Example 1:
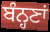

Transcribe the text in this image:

ਬੰਨ੍ਹਣਾਂ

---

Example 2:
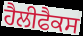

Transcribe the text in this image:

ਹੈਲੀਫੈਕਸ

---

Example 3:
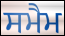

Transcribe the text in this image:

ਸਮੈਮ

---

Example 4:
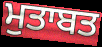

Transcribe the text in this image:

ਮੁਤਾਬਤ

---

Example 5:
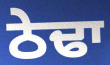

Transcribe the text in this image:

ਠੇਢਾ